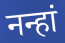
नन्हां